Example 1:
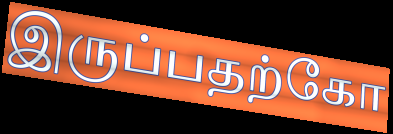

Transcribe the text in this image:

இருப்பதற்கோ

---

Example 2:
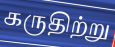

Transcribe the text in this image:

கருதிற்று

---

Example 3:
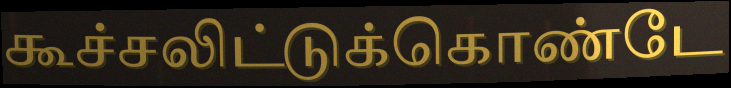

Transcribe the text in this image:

கூச்சலிட்டுக்கொண்டே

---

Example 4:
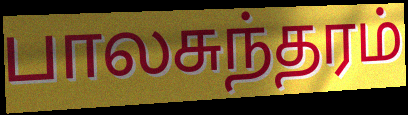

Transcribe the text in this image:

பாலசுந்தரம்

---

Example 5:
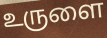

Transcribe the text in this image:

உருளை